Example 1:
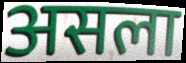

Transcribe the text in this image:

असला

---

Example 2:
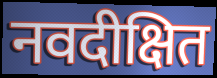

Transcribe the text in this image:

नवदीक्षित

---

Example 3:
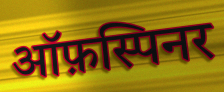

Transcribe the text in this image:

ऑफ़स्पिनर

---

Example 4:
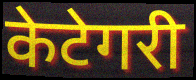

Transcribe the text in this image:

केटेगरी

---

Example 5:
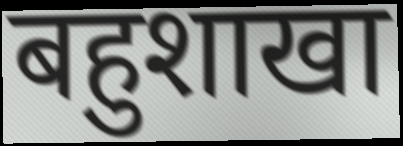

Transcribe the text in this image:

बहुशाखा